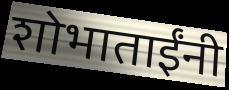
शोभाताईंनी